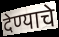
देण्याचे